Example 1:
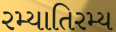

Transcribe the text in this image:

રમ્યાતિરમ્ય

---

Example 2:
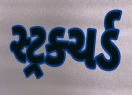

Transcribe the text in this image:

સ્ટ્રક્ચર્ડ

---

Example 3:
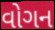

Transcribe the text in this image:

વોગન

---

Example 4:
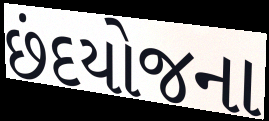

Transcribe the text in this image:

છંદયોજના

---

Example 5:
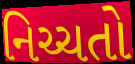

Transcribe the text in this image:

નિચ્ચતો